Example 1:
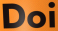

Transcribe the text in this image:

Doi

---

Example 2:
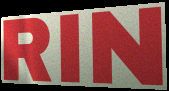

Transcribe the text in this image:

RIN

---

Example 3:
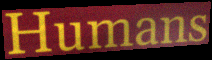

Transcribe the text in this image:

Humans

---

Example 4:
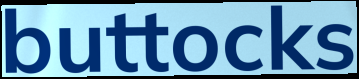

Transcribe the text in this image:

buttocks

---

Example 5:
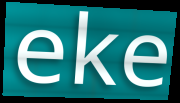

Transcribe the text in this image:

eke